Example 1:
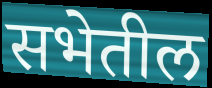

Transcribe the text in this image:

सभेतील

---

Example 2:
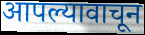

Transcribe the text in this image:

आपल्यावाचून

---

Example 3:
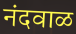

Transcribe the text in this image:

नंदवाळ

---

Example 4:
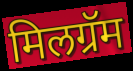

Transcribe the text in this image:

मिलग्रॅम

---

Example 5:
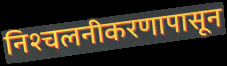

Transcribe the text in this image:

निश्चलनीकरणापासून